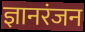
ज्ञानरंजन